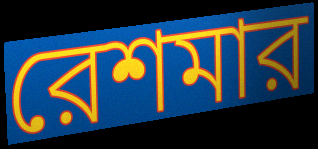
রেশমার